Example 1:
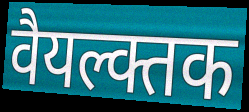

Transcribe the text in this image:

वैयल्क्तक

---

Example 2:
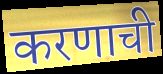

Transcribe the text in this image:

करणाची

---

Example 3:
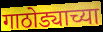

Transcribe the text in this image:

गाठोड्याच्या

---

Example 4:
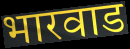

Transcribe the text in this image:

भारवाड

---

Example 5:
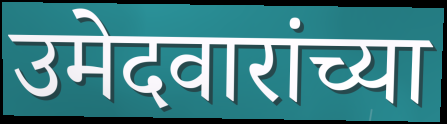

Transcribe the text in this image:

उमेदवारांच्या